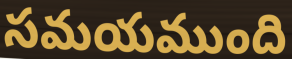
సమయముంది